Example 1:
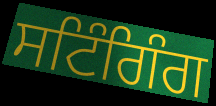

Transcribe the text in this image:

ਸਟਿੰਗਿੰਗ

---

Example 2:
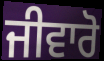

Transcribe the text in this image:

ਜੀਵਾਰੋ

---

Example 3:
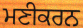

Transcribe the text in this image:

ਮਣੀਕਰਨ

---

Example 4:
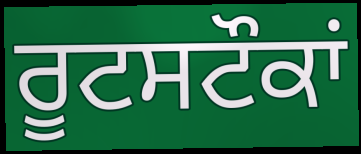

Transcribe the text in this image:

ਰੂਟਸਟੌਕਾਂ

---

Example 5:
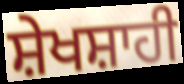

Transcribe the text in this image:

ਸ਼ੇਖਸ਼ਾਹੀ